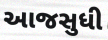
આજસુધી